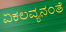
ಏಕಲವ್ಯನಂತೆ